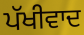
ਪੱਖੀਵਾਦ